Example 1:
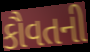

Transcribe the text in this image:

કૌવતની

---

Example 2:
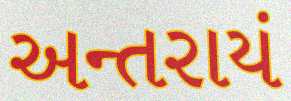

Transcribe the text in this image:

અન્તરાયં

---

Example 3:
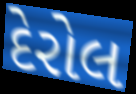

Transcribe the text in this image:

દેરોલ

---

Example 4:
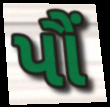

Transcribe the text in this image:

પૌં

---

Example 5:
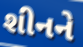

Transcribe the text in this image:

શીનને